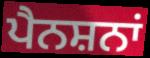
ਪੈਨਸ਼ਨਾਂ